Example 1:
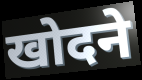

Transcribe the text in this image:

खोदने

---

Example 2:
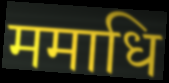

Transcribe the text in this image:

ममाधि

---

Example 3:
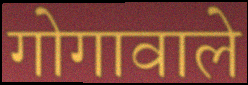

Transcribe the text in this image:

गोगावाले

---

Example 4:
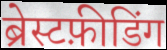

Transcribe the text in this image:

ब्रेस्टफ़ीडिंग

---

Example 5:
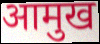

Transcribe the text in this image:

आमुख